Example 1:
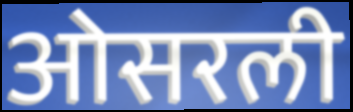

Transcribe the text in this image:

ओसरली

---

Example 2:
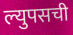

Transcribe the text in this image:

ल्युपसची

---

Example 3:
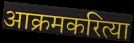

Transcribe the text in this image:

आक्रमकरित्या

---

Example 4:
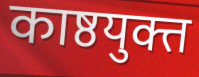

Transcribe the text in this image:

काष्ठयुक्त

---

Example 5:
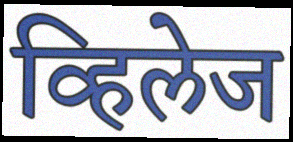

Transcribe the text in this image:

व्हिलेज